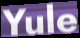
Yule